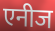
एनीज